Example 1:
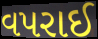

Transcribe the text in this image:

વપરાઈ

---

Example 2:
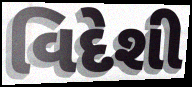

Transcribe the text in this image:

વિદેશી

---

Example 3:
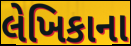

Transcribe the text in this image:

લેખિકાના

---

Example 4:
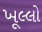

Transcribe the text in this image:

ખૂલ્લો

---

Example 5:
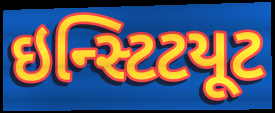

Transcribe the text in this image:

ઇન્સ્ટિટયૂટ